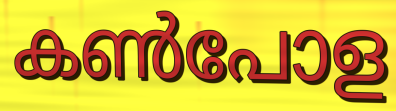
കൺപോള